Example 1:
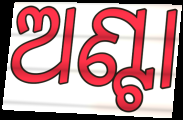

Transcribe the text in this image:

ଅଣ୍ଟା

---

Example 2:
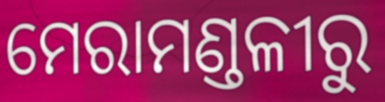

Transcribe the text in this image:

ମେରାମଣ୍ଡଳୀରୁ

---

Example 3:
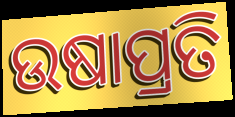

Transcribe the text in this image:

ଉଷାପ୍ରତି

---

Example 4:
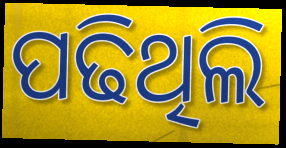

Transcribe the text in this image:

ପଢିଥିଲି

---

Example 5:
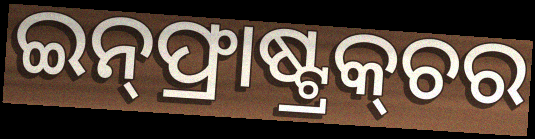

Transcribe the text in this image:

ଇନ୍‌ଫ୍ରାଷ୍ଟ୍ରକ୍‌ଚର